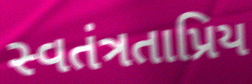
સ્વતંત્રતાપ્રિય